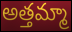
అత్తమ్మా